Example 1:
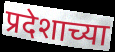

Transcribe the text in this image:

प्रदेशाच्या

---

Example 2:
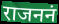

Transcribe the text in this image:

राजननं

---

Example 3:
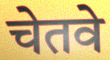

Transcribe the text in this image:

चेतवे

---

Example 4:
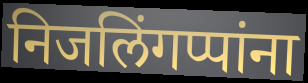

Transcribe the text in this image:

निजलिंगप्पांना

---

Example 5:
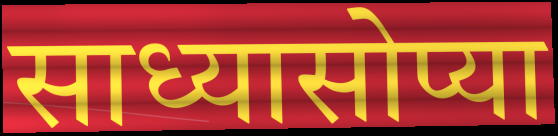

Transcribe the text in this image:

साध्यासोप्या